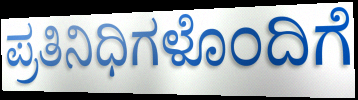
ಪ್ರತಿನಿಧಿಗಳೊಂದಿಗೆ